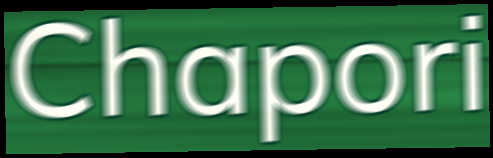
Chapori